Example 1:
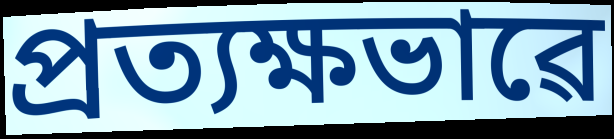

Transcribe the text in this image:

প্ৰত্যক্ষভাৱে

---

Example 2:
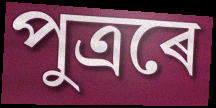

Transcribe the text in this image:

পুত্ৰৰে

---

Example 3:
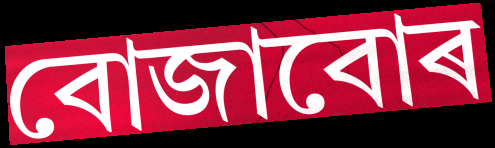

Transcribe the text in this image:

বোজাবোৰ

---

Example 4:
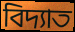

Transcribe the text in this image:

বিদ্যাত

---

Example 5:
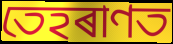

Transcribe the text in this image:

তেহৰাণত